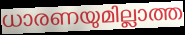
ധാരണയുമില്ലാത്ത